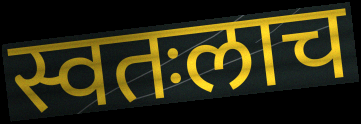
स्वतःलाच